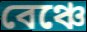
বেঞ্চে